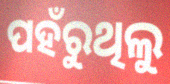
ପହଁରୁଥିଲୁ